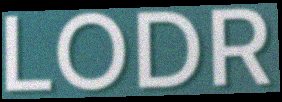
LODR